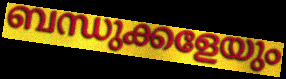
ബന്ധുക്കളേയും